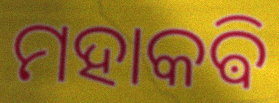
ମହାକଵି